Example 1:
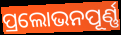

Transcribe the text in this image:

ପ୍ରଲୋଭନପୂର୍ଣ୍ଣ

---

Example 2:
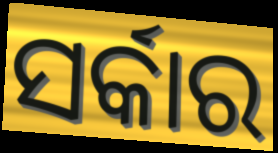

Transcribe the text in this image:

ସର୍କାର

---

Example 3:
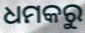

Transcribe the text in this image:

ଧମକରୁ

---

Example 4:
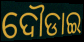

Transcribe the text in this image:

ଦୌଡାଇ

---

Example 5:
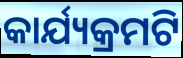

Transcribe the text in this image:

କାର୍ଯ୍ୟକ୍ରମଟି